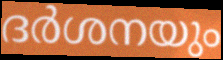
ദർശനയും